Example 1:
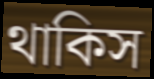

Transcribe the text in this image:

থাকিস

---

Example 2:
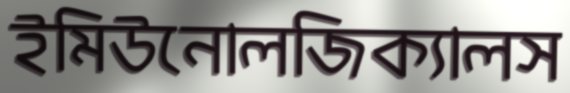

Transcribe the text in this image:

ইমিউনোলজিক্যালস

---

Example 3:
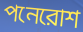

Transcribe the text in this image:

পনেরোশ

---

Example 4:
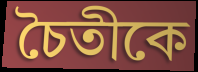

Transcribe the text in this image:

চৈতীকে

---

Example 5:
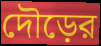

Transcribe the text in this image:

দৌড়ের